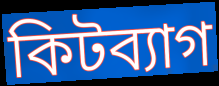
কিটব্যাগ